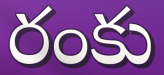
రంకు